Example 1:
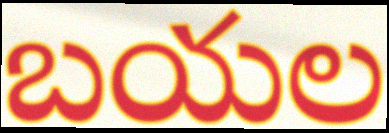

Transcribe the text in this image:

బయల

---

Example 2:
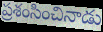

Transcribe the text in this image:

ప్రశంసించినాడు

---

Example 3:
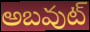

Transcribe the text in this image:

అబవుట్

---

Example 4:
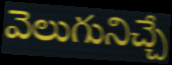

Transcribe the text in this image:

వెలుగునిచ్చే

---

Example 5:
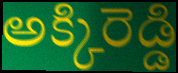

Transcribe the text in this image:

అక్కిరెడ్డి